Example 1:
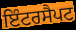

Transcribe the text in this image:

ਇੰਟਰਸੈਪਟ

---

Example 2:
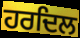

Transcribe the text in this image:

ਹਰਦਿਲ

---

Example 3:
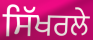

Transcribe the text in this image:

ਸਿੱਖਰਲੇ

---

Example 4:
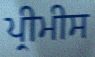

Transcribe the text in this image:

ਪ੍ਰੀਮੀਸ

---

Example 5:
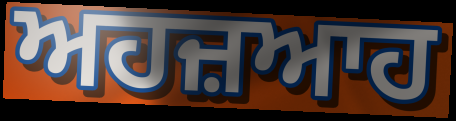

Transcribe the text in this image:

ਅਹਜ਼ਆਹ